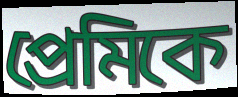
প্ৰেমিকে